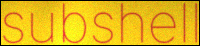
subshell